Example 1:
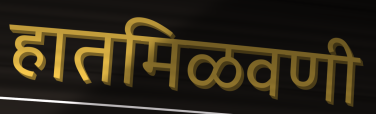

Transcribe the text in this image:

हातमिळवणी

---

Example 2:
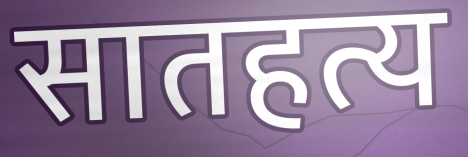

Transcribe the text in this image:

सातहत्य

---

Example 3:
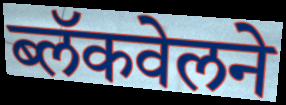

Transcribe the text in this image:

ब्लॅकवेलने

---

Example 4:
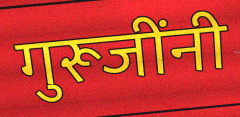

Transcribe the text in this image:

गुरूजींनी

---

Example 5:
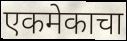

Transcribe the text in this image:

एकमेकाचा